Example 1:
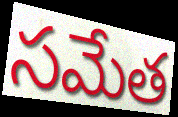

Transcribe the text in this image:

సమేత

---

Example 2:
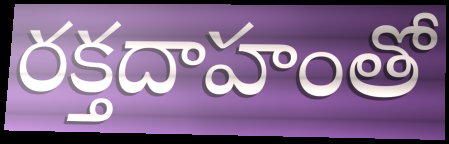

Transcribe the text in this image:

రక్తదాహంతో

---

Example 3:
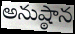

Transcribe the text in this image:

అనుష్ఠాన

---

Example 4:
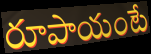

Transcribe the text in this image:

రూపాయంటే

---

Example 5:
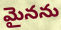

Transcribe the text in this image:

మైనను